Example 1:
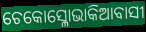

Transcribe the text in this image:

ଚେକୋସ୍ଳୋଭାକିଆବାସୀ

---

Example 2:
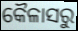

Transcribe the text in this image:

କୈଳାସରୁ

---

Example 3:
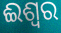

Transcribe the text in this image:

ଈଶ୍ଵର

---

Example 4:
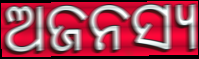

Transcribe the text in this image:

ଅଜନସ୍ୟ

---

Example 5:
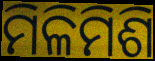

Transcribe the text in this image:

ମିଳିମିଶି